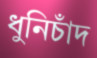
ধুনিচাঁদ